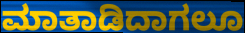
ಮಾತಾಡಿದಾಗಲೂ